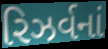
રિઝર્વનાં